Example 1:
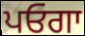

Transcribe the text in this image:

ਪਓਗਾ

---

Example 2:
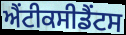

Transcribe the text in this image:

ਐਂਟੀਕਸੀਡੈਂਟਸ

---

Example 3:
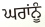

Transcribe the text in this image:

ਘਰਾਂਨੂੰ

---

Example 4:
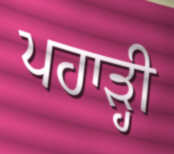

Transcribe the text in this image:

ਪਹਾੜ੍ਹੀ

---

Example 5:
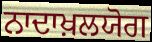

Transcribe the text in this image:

ਨਾਦਾਖ਼ਲਯੋਗ